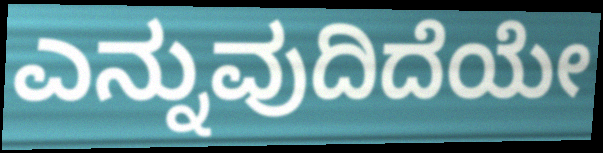
ಎನ್ನುವುದಿದೆಯೇ